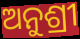
ଅନୁଶ୍ରୀ